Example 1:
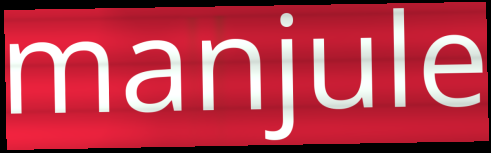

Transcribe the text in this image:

manjule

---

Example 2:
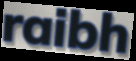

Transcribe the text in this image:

raibh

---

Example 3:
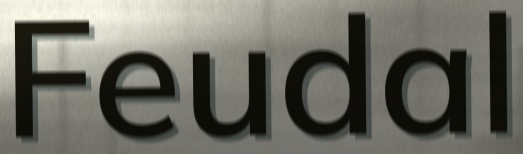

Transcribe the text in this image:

Feudal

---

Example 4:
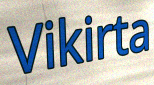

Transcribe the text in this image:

Vikirta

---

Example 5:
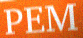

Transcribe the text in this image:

PEM